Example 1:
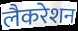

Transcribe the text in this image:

लैकरेशन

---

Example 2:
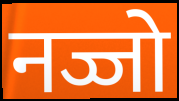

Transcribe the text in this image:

नज्जो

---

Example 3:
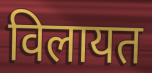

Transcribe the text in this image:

विलायत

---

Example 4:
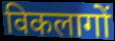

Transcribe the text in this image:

विकलागों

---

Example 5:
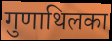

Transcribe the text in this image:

गुणाथिलका